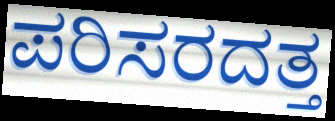
ಪರಿಸರದತ್ತ